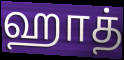
ஹாத்